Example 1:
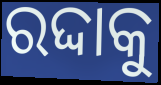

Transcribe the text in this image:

ରଦ୍ଦାକୁ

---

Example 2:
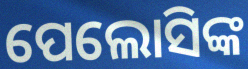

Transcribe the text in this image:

ପେଲୋସିଙ୍କ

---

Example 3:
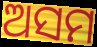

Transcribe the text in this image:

ଅସମ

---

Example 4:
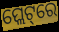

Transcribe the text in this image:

ପ୍ଲେଟ୍‌ରେ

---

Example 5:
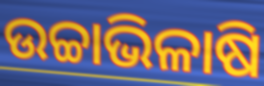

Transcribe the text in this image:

ଉଚ୍ଚାଭିଳାଷି